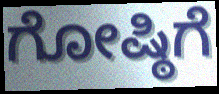
ಗೋಷ್ಠಿಗೆ